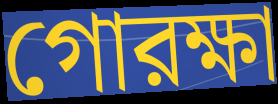
গোরক্ষা